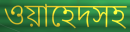
ওয়াহেদসহ